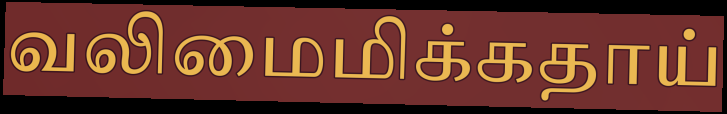
வலிமைமிக்கதாய்